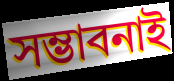
সম্ভাবনাই